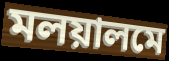
মলয়ালমে